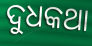
ଦୁଧକଥା